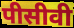
पीसीवी